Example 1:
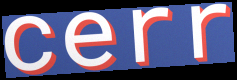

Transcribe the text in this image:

cerr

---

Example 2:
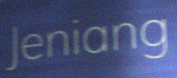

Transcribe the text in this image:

Jeniang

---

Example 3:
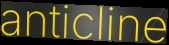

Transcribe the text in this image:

anticline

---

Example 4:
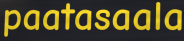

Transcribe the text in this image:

paatasaala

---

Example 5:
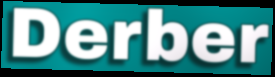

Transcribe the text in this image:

Derber